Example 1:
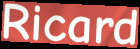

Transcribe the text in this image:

Ricard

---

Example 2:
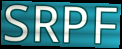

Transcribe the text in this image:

SRPF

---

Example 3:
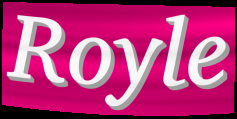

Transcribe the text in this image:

Royle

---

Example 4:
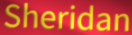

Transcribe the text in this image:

Sheridan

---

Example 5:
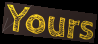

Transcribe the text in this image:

Yours